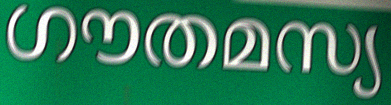
ഗൗതമസ്യ